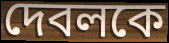
দেবলকে